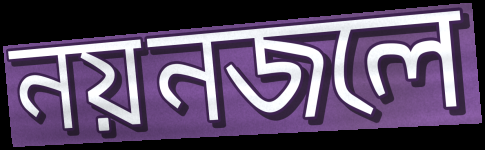
নয়নজলে